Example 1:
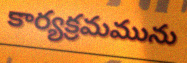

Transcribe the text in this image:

కార్యక్రమమును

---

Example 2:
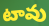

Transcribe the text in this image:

టావు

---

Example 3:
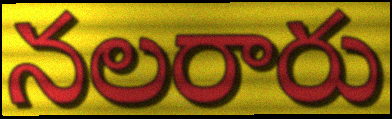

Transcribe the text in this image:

నలరారు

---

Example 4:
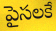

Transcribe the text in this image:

పైసలకే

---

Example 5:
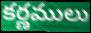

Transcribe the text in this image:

కర్ణములు